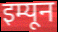
इम्यून